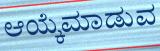
ಆಯ್ಕೆಮಾಡುವ